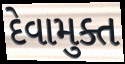
દેવામુક્ત